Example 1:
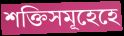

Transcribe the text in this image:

শক্তিসমূহেহে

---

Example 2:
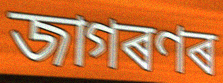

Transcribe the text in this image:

জাগৰণৰ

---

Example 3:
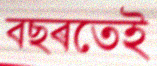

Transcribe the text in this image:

বছৰতেই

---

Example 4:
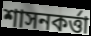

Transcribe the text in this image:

শাসনকৰ্ত্তা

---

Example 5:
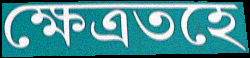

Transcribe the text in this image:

ক্ষেত্ৰতহে